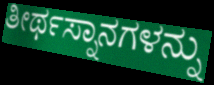
ತೀರ್ಥಸ್ನಾನಗಳನ್ನು